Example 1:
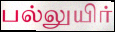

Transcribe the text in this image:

பல்லுயிர்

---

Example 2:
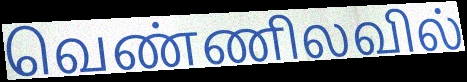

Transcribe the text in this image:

வெண்ணிலவில்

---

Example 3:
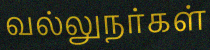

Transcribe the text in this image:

வல்லுநர்கள்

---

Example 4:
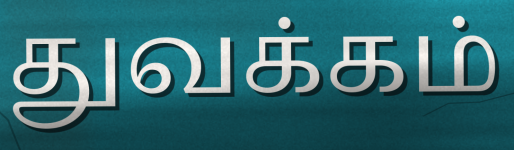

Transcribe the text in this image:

துவக்கம்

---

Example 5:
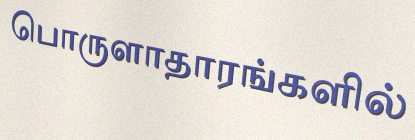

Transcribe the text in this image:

பொருளாதாரங்களில்